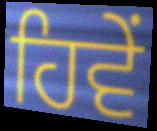
ਹਿਵੇਂ